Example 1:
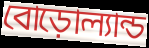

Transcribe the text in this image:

বোড়োল্যান্ড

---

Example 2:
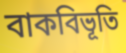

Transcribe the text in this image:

বাকবিভূতি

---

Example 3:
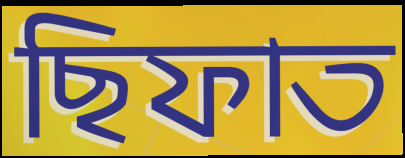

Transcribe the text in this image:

ছিফাত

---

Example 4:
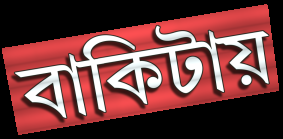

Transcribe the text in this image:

বাকিটায়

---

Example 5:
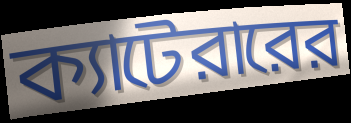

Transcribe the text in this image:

ক্যাটেরারের